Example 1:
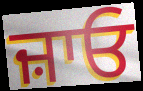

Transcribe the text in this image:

ਜ਼ਾਓ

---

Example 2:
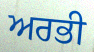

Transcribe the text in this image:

ਅਰਭੀ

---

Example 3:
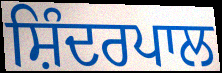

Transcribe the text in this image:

ਸ਼ਿੰਦਰਪਾਲ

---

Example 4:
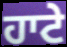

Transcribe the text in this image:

ਹਾਟੇ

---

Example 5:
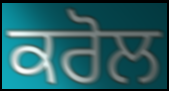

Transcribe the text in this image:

ਕਰੋਲ